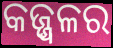
କଜ୍ଜ୍ୱଳର